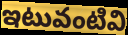
ఇటువంటివి